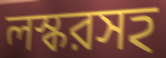
লস্করসহ